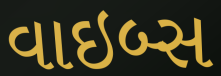
વાઇબ્સ